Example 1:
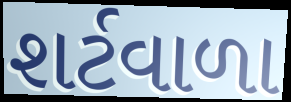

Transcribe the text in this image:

શર્ટવાળા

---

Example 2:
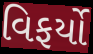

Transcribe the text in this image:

વિફર્યો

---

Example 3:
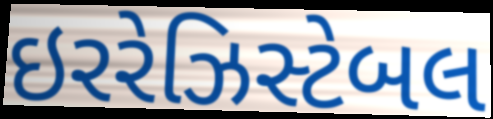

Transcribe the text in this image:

ઇરરેઝિસ્ટેબલ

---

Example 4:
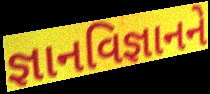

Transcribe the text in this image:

જ્ઞાનવિજ્ઞાનને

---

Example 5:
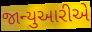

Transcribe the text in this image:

જાન્યુઆરીએ